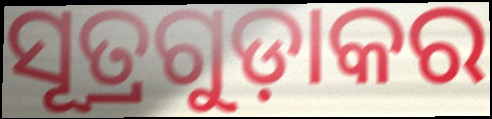
ସୂତ୍ରଗୁଡ଼ାକର